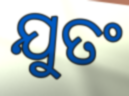
ଯୁତଂ